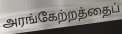
அரங்கேற்றத்தைப்